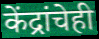
केंद्रांचेही